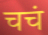
चचं